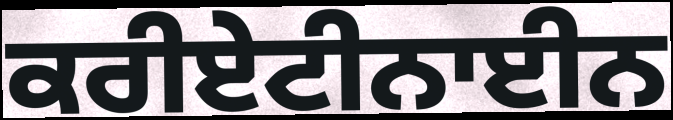
ਕਰੀਏਟੀਨਾਈਨ